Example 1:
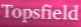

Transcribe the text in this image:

Topsfield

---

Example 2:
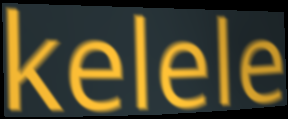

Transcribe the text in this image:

kelele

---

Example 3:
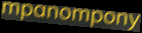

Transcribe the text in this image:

mpanompony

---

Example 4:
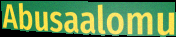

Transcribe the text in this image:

Abusaalomu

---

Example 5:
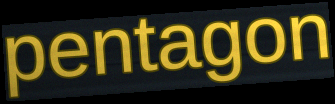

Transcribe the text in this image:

pentagon